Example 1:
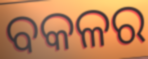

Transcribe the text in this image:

ବକଳର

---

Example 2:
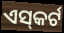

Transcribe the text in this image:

ଏସ୍‌କର୍ଟ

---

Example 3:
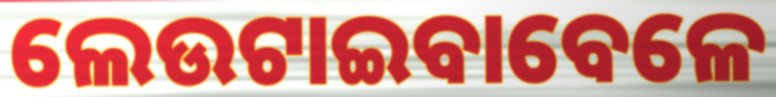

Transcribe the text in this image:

ଲେଉଟାଇବାବେଳେ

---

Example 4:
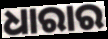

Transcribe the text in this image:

ଧାରାର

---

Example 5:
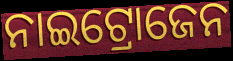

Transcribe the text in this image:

ନାଇଟ୍ରୋଜେନ